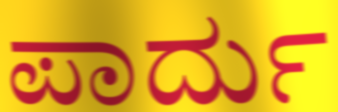
ಪಾರ್ದು